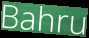
Bahru